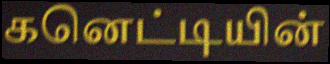
கனெட்டியின்